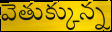
వెతుక్కున్న